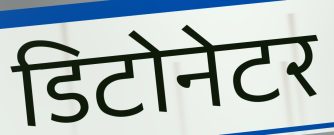
डिटोनेटर